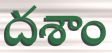
దశాం